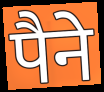
पैने